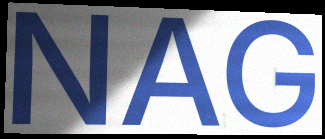
NAG